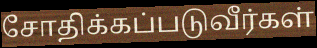
சோதிக்கப்படுவீர்கள்